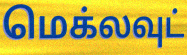
மெக்லவுட்